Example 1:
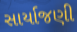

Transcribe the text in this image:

સાર્યાજણી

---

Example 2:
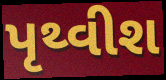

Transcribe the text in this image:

પૃથ્વીશ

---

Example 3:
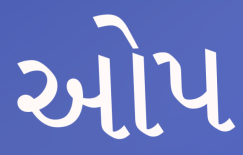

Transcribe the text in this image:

ઓપ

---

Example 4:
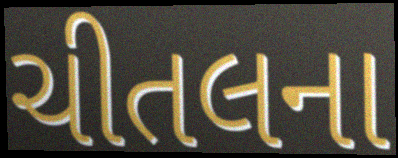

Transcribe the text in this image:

ચીતલના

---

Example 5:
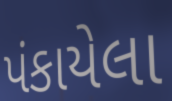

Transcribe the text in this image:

પંકાયેલા